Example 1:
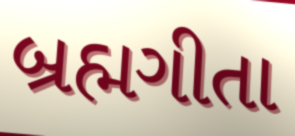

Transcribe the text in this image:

બ્રહ્મગીતા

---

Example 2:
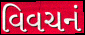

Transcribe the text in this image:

વિવચનં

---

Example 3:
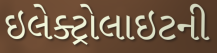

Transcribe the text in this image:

ઇલેક્ટ્રોલાઇટની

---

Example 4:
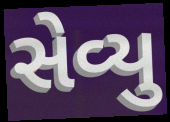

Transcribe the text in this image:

સેવ્યુ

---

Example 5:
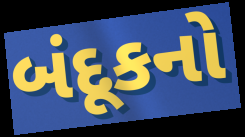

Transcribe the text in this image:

બંદૂકનો